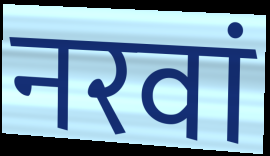
नरवां